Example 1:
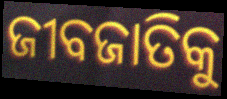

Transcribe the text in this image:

ଜୀବଜାତିକୁ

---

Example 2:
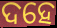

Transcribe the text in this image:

ଦହେ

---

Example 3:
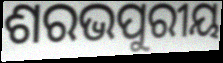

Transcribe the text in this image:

ଶରଭପୁରୀୟ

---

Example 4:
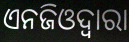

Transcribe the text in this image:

ଏନଜିଓଦ୍ୱାରା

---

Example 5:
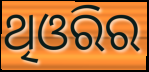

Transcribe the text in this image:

ଥିଓରିର